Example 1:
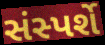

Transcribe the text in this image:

સંસ્પર્શે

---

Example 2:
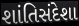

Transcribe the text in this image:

શાંતિસંદેશા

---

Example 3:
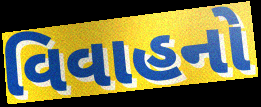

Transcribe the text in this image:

વિવાહનો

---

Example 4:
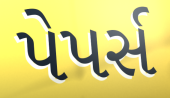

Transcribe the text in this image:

પેપર્સ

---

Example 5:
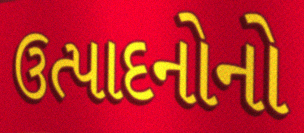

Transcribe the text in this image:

ઉત્પાદનોનો